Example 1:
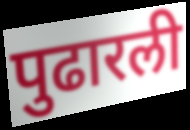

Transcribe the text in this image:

पुढारली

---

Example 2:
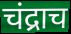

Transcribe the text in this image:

चंद्राच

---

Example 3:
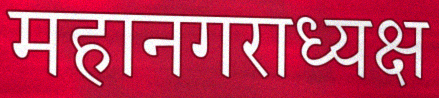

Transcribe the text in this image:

महानगराध्यक्ष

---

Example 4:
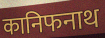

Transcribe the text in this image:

कानिफनाथ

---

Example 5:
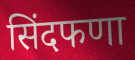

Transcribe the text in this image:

सिंदफणा